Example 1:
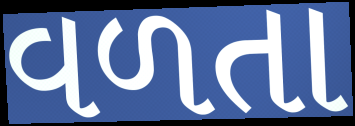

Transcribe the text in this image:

વળતા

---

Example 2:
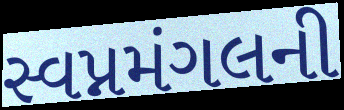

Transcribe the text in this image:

સ્વપ્નમંગલની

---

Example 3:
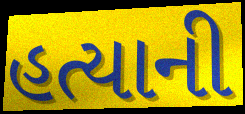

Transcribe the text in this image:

હત્યાની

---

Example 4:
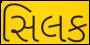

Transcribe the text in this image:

સિલક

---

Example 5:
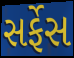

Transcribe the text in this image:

સર્ફેસ